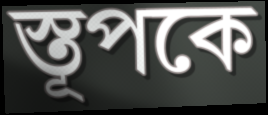
স্তূপকে